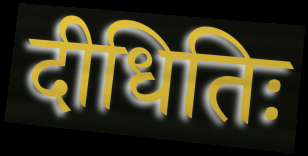
दीधितिः